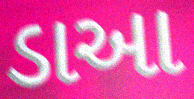
ડાઆ